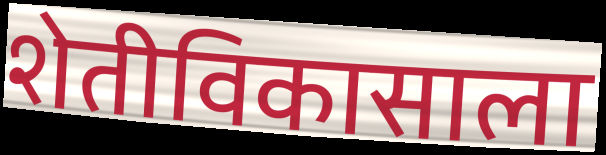
शेतीविकासाला